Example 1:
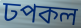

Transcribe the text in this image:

ঢপকল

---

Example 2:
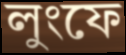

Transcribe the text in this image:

লুংফে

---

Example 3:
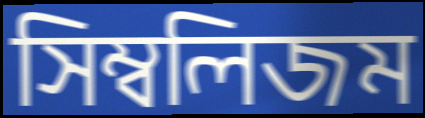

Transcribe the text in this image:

সিম্বলিজম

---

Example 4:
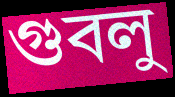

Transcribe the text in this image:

গুবলু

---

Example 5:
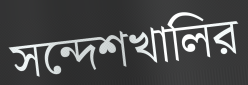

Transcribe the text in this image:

সন্দেশখালির